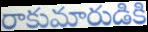
రాకుమారుడికి